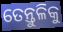
ତେନ୍ତୁଳିକୁ